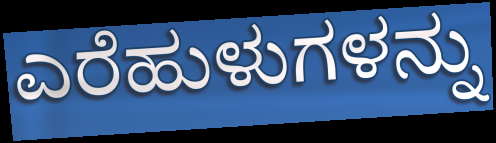
ಎರೆಹುಳುಗಳನ್ನು